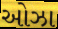
ઓઝા